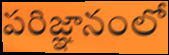
పరిజ్ఞానంలో